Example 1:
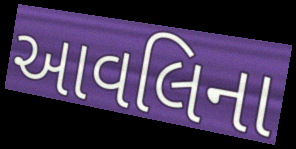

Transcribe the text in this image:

આવલિના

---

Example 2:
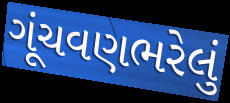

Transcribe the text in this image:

ગૂંચવણભરેલું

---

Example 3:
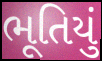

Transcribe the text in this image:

ભૂતિયું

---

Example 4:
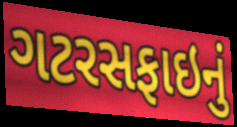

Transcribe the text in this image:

ગટરસફાઇનું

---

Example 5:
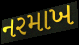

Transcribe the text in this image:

નરમાખ